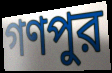
গণপুর